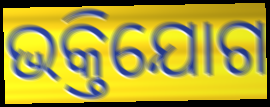
ଭକ୍ତିଯୋଗ